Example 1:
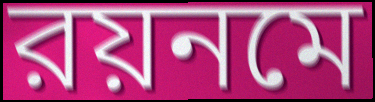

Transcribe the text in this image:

রয়নমে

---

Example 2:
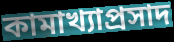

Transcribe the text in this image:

কামাখ্যাপ্রসাদ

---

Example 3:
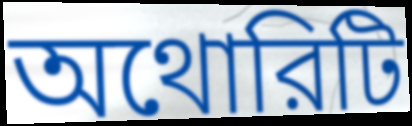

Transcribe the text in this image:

অথোরিটি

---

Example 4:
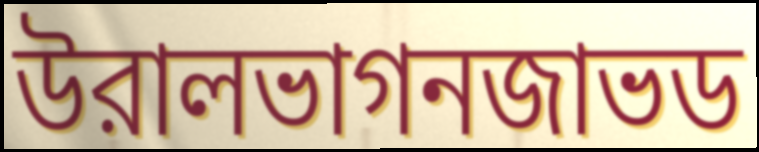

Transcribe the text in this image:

উরালভাগনজাভড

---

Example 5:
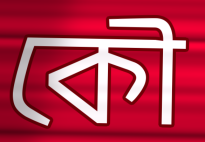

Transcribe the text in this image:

কৌ